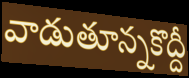
వాడుతూన్నకొద్దీ